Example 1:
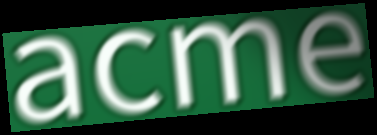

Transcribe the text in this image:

acme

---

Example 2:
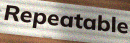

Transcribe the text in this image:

Repeatable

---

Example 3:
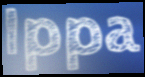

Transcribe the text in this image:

Ippa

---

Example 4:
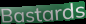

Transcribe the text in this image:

Bastards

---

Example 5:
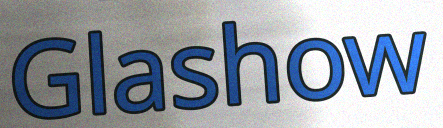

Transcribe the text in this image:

Glashow